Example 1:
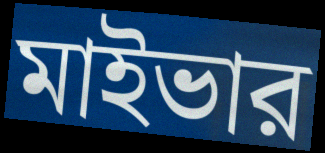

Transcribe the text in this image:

মাইভার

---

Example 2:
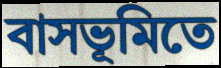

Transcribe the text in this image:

বাসভূমিতে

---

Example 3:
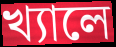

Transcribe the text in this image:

খ্যালে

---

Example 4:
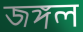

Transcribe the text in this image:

জঙ্গল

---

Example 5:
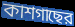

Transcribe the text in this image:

কাশগাছের